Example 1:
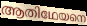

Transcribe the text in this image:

ആതിഥേയനെ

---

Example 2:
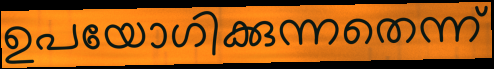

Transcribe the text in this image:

ഉപയോഗിക്കുന്നതെന്ന്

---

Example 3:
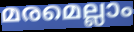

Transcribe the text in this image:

മരമെല്ലാം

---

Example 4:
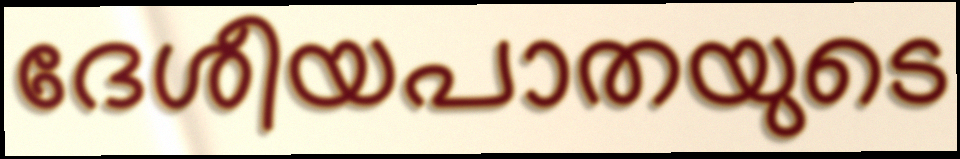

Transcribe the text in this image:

ദേശീയപാതയുടെ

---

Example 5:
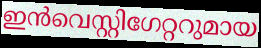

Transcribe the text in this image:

ഇൻവെസ്റ്റിഗേറ്ററുമായ